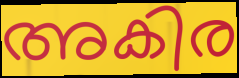
അകിര